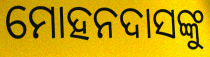
ମୋହନଦାସଙ୍କୁ